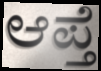
ಆಪ್ತೆ